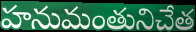
హనుమంతునిచేత